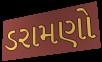
ડરામણો